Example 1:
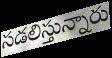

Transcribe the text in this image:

సడలిస్తున్నారు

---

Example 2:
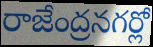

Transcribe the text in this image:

రాజేంద్రనగర్లో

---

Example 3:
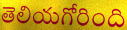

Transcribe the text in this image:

తెలియగోరింది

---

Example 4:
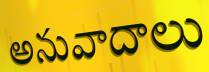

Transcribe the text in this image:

అనువాదాలు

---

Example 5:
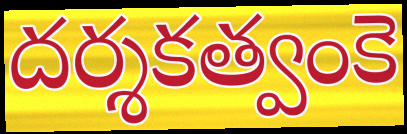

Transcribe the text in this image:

దర్శకత్వంకె